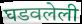
घडवलेली